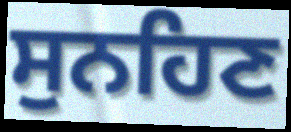
ਸੁਨਹਿਣ